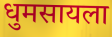
धुमसायला